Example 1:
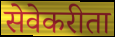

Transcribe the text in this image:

सेवेकरीता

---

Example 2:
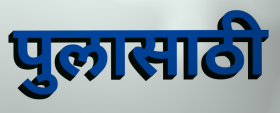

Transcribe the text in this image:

पुलासाठी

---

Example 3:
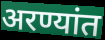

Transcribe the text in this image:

अरण्यांत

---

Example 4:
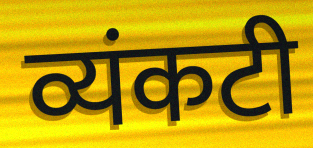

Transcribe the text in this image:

व्यंकटी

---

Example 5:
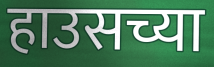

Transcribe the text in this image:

हाउसच्या